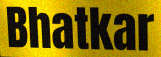
Bhatkar